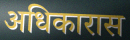
अधिकारास